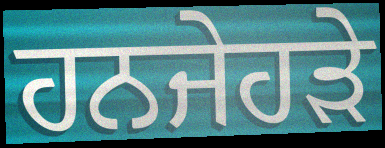
ਹਨਜੇਹੜੇ